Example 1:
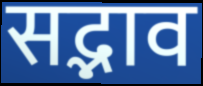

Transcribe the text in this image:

सद्भाव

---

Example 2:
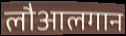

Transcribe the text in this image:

लौआलगान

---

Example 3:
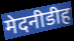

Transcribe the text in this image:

मेदनीडीह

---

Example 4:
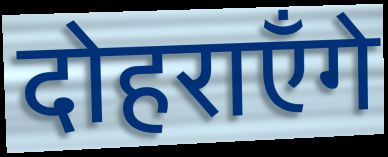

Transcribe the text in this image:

दोहराएँगे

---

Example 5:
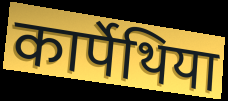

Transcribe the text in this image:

कार्पेथिया